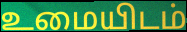
உமையிடம்